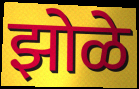
झोळे